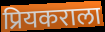
प्रियकराला